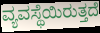
ವ್ಯವಸ್ಥೆಯಿರುತ್ತದೆ